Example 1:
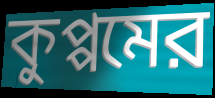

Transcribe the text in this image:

কুপ্পমের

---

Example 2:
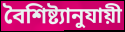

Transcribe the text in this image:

বৈশিষ্ট্যানুযায়ী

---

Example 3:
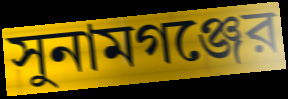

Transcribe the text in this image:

সুনামগঞ্জের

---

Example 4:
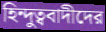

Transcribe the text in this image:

হিন্দুত্ববাদীদের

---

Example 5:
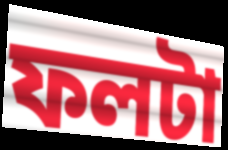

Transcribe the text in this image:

ফলটা